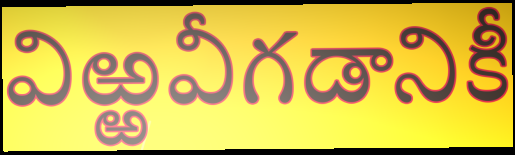
విఱ్ఱవీగడానికీ